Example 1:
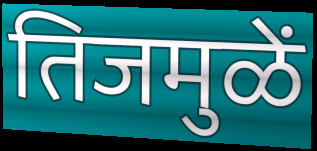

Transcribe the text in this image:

तिजमुळें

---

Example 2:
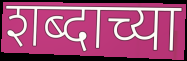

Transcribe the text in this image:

शब्दाच्या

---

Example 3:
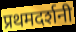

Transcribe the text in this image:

प्रथमदर्शनी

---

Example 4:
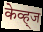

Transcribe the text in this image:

केव्ह्ज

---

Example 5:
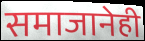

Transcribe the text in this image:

समाजानेही